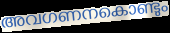
അവഗണനകൊണ്ടും